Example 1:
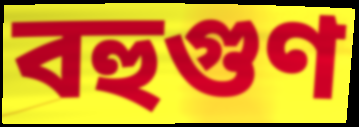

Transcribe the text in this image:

বহুগুণ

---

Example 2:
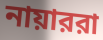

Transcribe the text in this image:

নায়াররা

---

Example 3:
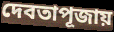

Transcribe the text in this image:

দেবতাপূজায়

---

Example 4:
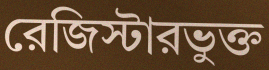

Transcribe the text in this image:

রেজিস্টারভুক্ত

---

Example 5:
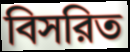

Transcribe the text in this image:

বিসরিত